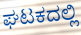
ಘಟಕದಲ್ಲಿ